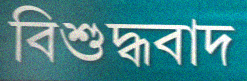
বিশুদ্ধবাদ